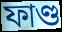
ফাণ্ড